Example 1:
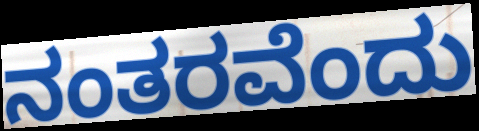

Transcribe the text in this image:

ನಂತರವೆಂದು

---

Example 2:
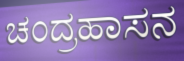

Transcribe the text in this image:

ಚಂದ್ರಹಾಸನ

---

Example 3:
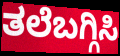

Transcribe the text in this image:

ತಲೆಬಗ್ಗಿಸಿ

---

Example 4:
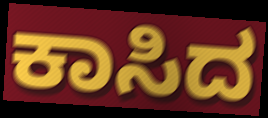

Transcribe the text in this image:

ಕಾಸಿದ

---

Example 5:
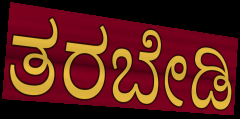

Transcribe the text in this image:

ತರಬೇಡಿ